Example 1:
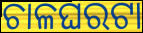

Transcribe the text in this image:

ଚାଳଘରଟା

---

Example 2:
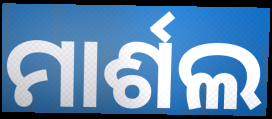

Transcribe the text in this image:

ମାର୍ଶଲ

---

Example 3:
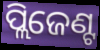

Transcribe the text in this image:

ପ୍ଲିଜେଣ୍ଟ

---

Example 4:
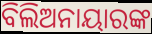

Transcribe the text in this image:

ବିଲିଅନାୟାରଙ୍କ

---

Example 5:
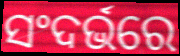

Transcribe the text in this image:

ସଂଦର୍ଭରେ